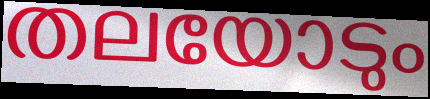
തലയോടും